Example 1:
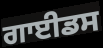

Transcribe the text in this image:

ਗਾਈਡਸ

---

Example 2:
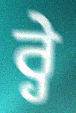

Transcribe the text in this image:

ਰ੍ਹੇ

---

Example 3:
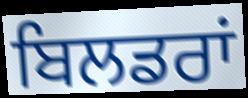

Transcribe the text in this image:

ਬਿਲਡਰਾਂ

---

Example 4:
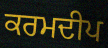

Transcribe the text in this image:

ਕਰਮਦੀਪ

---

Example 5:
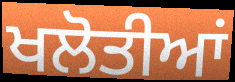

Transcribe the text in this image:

ਖਲੋਤੀਆਂ